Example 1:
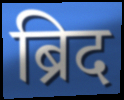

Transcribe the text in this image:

ब्रिद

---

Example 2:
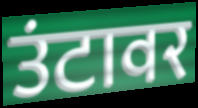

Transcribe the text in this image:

उंटावर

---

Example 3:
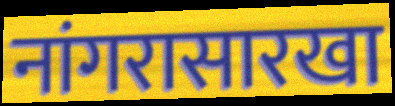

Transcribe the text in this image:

नांगरासारखा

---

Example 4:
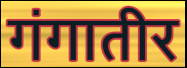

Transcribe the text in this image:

गंगातीर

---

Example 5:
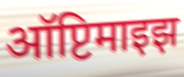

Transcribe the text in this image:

ऑप्टिमाइझ